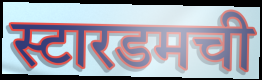
स्टारडमची